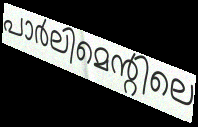
പാർലിമെന്റിലെ